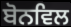
ਬੋਨਵਿਲ